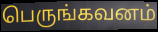
பெருங்கவனம்